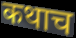
कथाच